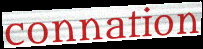
connation